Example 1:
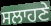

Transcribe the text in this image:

ਸਲਾਹਣੇ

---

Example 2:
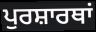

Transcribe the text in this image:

ਪੁਰਸ਼ਾਰਥਾਂ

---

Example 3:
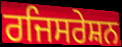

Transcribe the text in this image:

ਰਜਿਸਰੇਸ਼ਨ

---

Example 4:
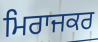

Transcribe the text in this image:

ਮਿਰਾਜਕਰ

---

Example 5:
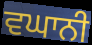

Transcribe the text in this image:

ਵਘਾਨੀ